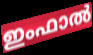
ഇംഫാൽ